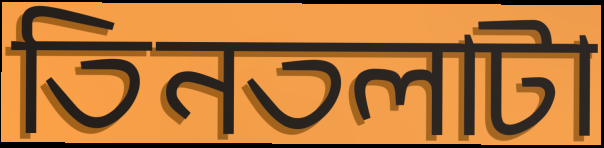
তিনতলাটা